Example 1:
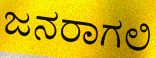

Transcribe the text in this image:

ಜನರಾಗಲಿ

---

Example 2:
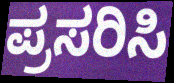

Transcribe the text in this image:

ಪ್ರಸರಿಸಿ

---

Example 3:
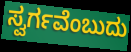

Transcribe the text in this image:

ಸ್ವರ್ಗವೆಂಬುದು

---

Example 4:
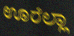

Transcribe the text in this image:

ಊರೆಲ್ಲಾ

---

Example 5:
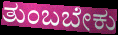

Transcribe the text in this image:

ತುಂಬಬೇಕು